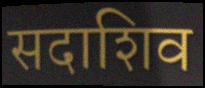
सदाशिव